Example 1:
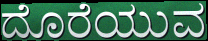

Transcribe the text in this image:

ದೊರೆಯುವ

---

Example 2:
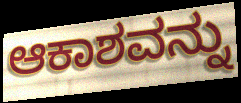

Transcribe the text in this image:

ಆಕಾಶವನ್ನು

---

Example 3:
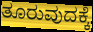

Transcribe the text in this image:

ತೂರುವುದಕ್ಕೆ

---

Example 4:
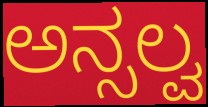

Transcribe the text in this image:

ಅನ್ಸಲ್ವ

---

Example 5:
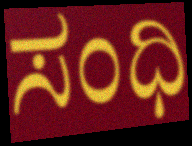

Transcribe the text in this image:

ಸಂಧಿ